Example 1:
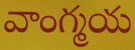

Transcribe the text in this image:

వాంగ్మయ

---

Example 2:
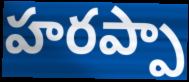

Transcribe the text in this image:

హరప్పా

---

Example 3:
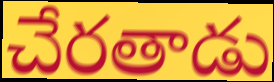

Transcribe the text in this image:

చేరతాడు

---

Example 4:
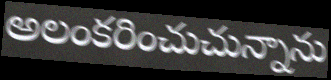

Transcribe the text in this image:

అలంకరించుచున్నాను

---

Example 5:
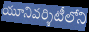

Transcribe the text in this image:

యూనివర్శిటీలోని